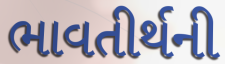
ભાવતીર્થની